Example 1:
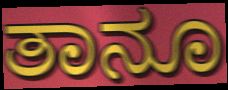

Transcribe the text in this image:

ತಾನೂ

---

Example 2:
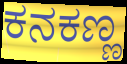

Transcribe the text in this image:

ಕನಕಣ್ಣ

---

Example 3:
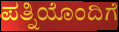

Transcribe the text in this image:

ಪತ್ನಿಯೊಂದಿಗೆ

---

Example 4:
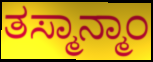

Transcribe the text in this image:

ತಸ್ಮಾನ್ಮಾಂ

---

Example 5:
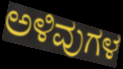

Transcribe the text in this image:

ಅಳಿವುಗಳ